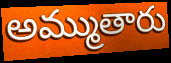
అమ్ముతారు